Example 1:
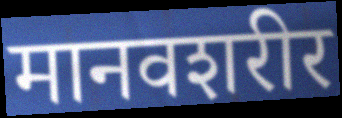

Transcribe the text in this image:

मानवशरीर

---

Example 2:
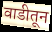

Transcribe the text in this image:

वाडीतून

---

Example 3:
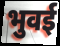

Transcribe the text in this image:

भुवई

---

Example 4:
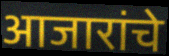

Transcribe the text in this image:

आजारांचे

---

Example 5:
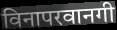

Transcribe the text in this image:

विनापरवानगी